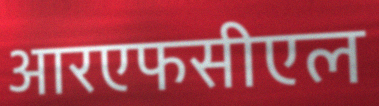
आरएफसीएल